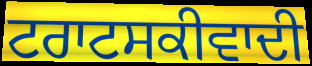
ਟਰਾਟਸਕੀਵਾਦੀ